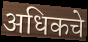
अधिकचे